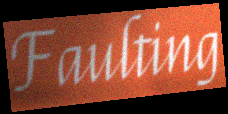
Faulting